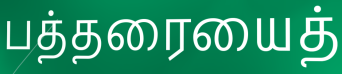
பத்தரையைத்